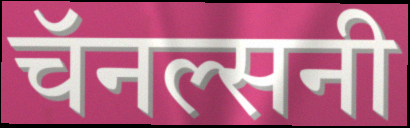
चॅनल्सनी